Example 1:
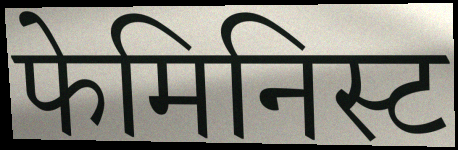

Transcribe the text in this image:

फेमिनिस्ट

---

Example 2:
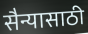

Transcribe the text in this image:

सैन्यासाठी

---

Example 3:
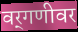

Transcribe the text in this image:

वर्गणीवर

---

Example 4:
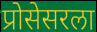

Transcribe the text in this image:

प्रोसेसरला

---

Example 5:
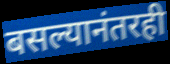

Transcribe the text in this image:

बसल्यानंतरही